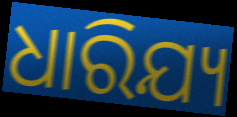
ଧାରିଯ୍ୟ